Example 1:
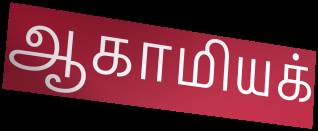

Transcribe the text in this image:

ஆகாமியக்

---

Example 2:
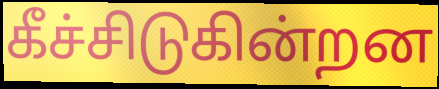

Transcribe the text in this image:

கீச்சிடுகின்றன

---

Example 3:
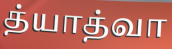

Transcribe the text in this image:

த்யாத்வா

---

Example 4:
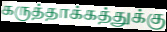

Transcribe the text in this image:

கருத்தாக்கத்துக்கு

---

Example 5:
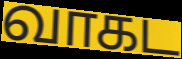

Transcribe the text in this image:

வாகட